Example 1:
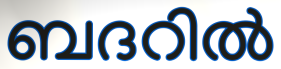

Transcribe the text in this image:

ബദറിൽ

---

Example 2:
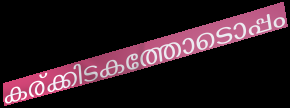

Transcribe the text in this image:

കര്ക്കിടകത്തോടൊപ്പം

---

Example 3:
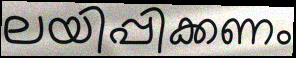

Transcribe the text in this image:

ലയിപ്പിക്കണം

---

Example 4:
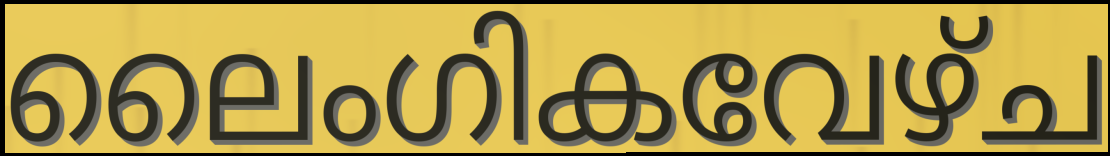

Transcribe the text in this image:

ലൈംഗികവേഴ്ച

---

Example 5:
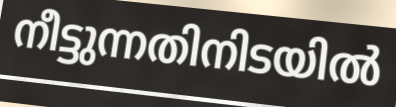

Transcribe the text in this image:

നീട്ടുന്നതിനിടയിൽ